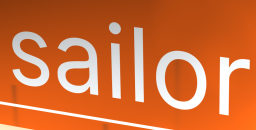
sailor